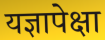
यज्ञापेक्षा